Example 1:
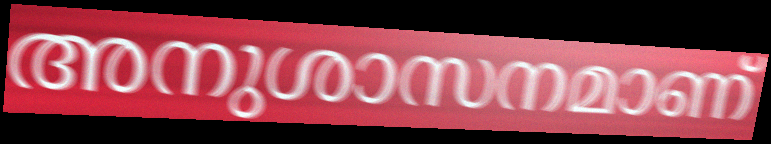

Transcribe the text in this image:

അനുശാസനമാണ്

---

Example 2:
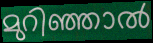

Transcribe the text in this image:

മുറിഞ്ഞാൽ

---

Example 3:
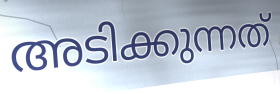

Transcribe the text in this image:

അടിക്കുന്നത്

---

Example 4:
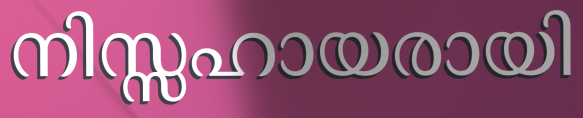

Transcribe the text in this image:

നിസ്സഹായരായി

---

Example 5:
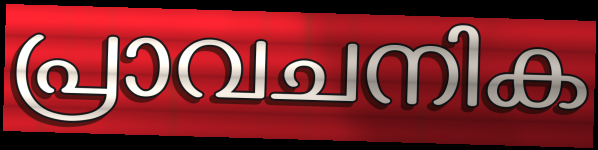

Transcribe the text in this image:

പ്രാവചനിക